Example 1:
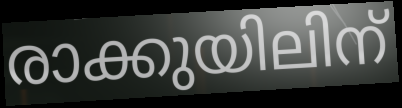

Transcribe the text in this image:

രാക്കുയിലിന്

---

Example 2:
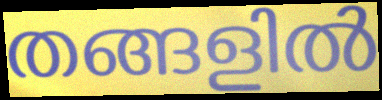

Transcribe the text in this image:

തങ്ങളിൽ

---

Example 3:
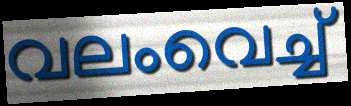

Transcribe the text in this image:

വലംവെച്ച്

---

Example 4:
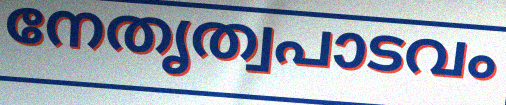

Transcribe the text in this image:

നേതൃത്വപാടവം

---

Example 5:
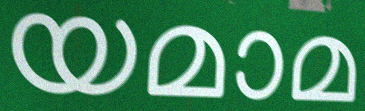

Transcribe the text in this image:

യമാമ